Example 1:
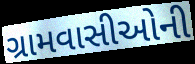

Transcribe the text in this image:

ગ્રામવાસીઓની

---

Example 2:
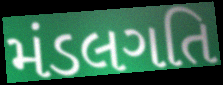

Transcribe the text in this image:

મંડલગતિ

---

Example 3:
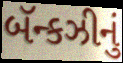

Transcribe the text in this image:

બૅન્કઝીનું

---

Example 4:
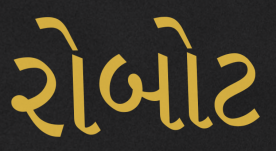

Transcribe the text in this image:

રોબોટ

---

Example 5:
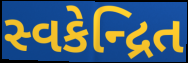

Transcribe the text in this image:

સ્વકેન્દ્રિત